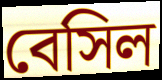
বেসিল